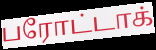
பரோட்டாக்